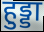
हुड्डा